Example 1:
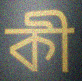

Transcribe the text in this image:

কী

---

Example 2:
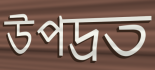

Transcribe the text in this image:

উপদ্রত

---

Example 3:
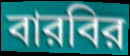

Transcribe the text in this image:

বারবির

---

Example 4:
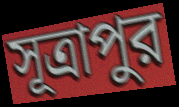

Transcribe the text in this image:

সূত্রাপুর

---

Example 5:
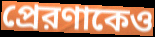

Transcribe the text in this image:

প্রেরণাকেও